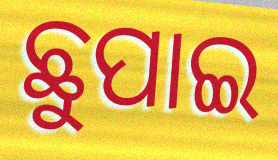
ଛୁପାଇ